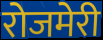
रोजमेरी